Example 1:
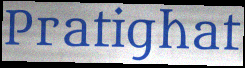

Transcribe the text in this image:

Pratighat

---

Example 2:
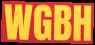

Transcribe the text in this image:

WGBH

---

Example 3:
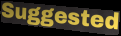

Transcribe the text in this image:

Suggested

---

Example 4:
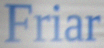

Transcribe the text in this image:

Friar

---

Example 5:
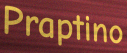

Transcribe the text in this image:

Praptino